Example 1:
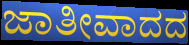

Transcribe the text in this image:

ಜಾತೀವಾದದ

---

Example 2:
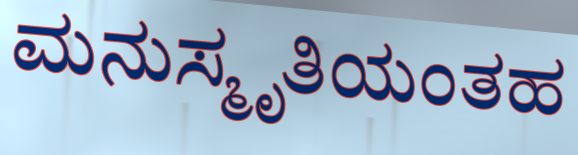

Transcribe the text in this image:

ಮನುಸ್ಮೃತಿಯಂತಹ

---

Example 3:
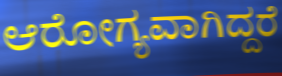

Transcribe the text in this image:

ಆರೋಗ್ಯವಾಗಿದ್ದರೆ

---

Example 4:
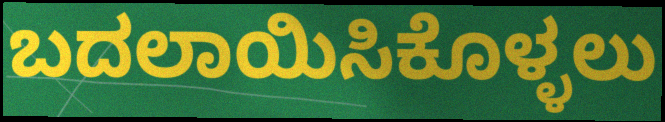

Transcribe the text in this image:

ಬದಲಾಯಿಸಿಕೊಳ್ಳಲು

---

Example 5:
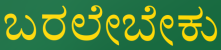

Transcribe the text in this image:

ಬರಲೇಬೇಕು